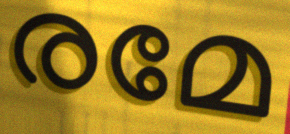
രമേ